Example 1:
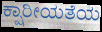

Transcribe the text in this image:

ಕ್ಷಾರೀಯತೆಯ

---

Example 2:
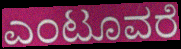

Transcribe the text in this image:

ಎಂಟೂವರೆ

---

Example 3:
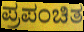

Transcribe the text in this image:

ಪ್ರಪಂಚಿತ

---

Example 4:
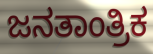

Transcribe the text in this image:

ಜನತಾಂತ್ರಿಕ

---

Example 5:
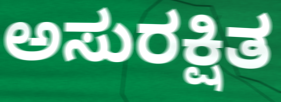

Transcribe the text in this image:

ಅಸುರಕ್ಷಿತ